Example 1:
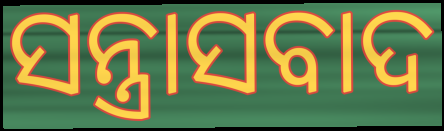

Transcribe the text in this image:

ସନ୍ତ୍ରାସବାଦ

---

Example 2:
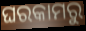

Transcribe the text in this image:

ଘରକାମରୁ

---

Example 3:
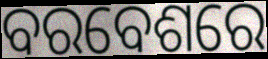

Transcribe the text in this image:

ବରବେଶରେ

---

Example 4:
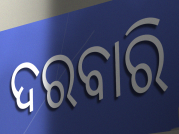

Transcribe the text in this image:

ଦରବାରି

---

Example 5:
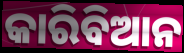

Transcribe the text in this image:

କାରିବିଆନ